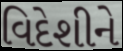
વિદેશીને